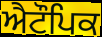
ਐਟੌਪਿਕ